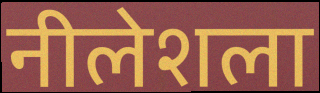
नीलेशला